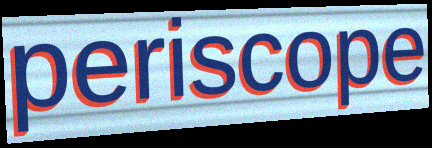
periscope